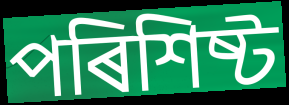
পৰিশিষ্ট